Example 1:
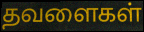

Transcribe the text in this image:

தவளைகள்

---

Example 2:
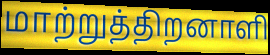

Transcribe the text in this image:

மாற்றுத்திறனாளி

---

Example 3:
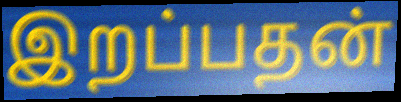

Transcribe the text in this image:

இறப்பதன்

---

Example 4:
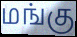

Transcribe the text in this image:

மங்கு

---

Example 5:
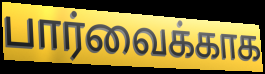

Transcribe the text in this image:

பார்வைக்காக